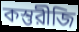
কস্তুরীজি